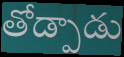
తోడ్పాడు